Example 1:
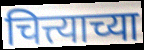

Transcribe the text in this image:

चित्त्याच्या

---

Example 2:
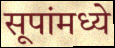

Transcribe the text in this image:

सूपांमध्ये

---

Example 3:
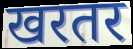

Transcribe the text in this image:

खरतर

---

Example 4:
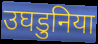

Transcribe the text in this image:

उघडुनिया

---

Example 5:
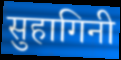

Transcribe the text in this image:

सुहागिनी